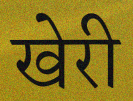
खेरी